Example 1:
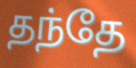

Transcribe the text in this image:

தந்தே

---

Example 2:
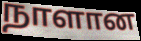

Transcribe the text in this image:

நாளான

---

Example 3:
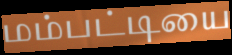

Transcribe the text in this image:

மம்பட்டியை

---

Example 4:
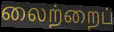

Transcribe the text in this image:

லைற்றைப்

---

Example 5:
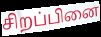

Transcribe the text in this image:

சிறப்பினை